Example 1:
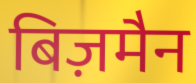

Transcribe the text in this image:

बिज़मैन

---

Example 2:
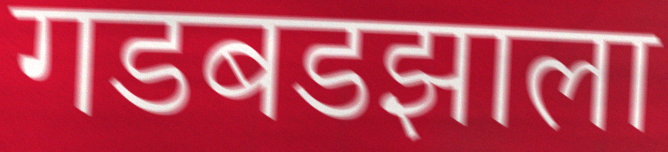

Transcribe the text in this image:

गडबडझाला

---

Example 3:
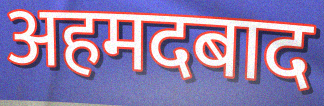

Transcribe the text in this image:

अहमदबाद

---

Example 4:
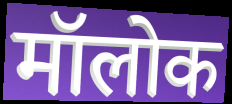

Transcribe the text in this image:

मॉलोक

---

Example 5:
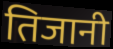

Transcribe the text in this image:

तिजानी